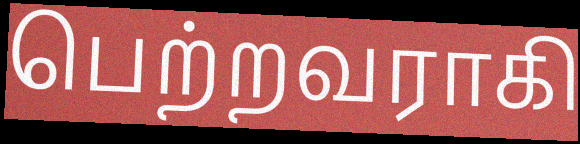
பெற்றவராகி